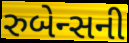
રુબેન્સની